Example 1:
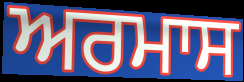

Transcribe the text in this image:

ਅਰਮਾਸ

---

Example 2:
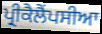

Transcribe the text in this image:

ਪ੍ਰੀਕੈਲੈਂਪਸੀਆ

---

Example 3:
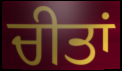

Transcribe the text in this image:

ਚੀਤਾਂ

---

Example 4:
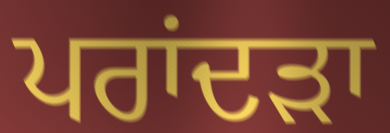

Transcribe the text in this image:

ਪਰਾਂਦੜਾ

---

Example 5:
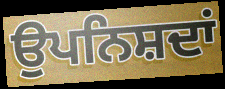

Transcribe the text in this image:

ਉਪਨਿਸ਼ਦਾਂ